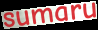
sumaru